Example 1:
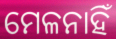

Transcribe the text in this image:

ମେଳନାହିଁ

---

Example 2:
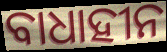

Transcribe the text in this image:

ବାଧାହୀନ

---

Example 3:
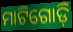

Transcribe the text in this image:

ମାଟିଗୋଡ଼ି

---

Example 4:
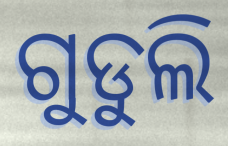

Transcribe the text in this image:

ଗୁଡୁଲି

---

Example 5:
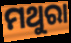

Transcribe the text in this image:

ମଥୁରା